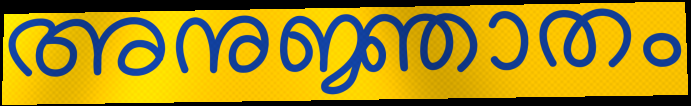
അനുജ്ഞാതം